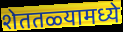
शेततळ्यामध्ये